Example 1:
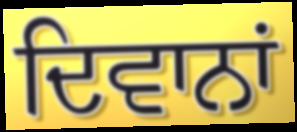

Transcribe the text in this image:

ਦਿਵਾਨਾਂ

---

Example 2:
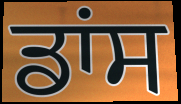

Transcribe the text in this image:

ਡਾਂਸ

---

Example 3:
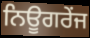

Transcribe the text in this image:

ਨਿਊਗਰੇਂਜ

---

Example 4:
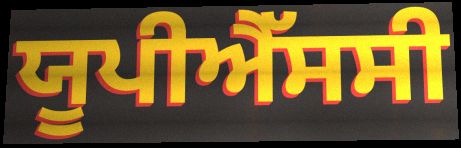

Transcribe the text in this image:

ਯੂਪੀਐੱਸਸੀ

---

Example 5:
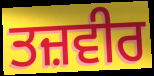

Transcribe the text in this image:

ਤਜ਼ਵੀਰ